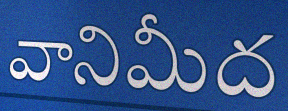
వానిమీద